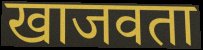
खाजवता